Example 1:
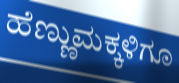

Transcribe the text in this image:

ಹೆಣ್ಣುಮಕ್ಕಳಿಗೂ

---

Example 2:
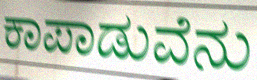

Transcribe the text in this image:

ಕಾಪಾಡುವೆನು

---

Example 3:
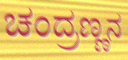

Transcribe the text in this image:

ಚಂದ್ರಣ್ಣನ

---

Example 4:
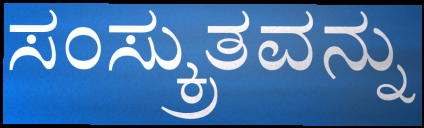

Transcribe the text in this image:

ಸಂಸ್ಕ್ರುತವನ್ನು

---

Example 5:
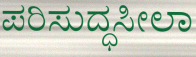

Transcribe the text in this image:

ಪರಿಸುದ್ಧಸೀಲಾ